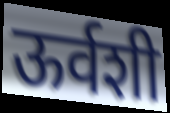
ऊर्वशी